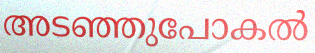
അടഞ്ഞുപോകൽ